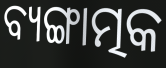
ବ୍ୟଙ୍ଗାତ୍ମକ